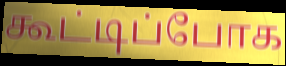
கூட்டிப்போக